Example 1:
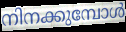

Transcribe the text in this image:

നിനക്കുമ്പോൾ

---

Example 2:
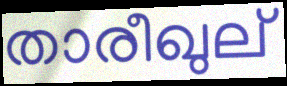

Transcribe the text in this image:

താരീഖുല്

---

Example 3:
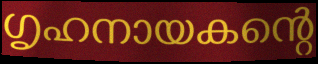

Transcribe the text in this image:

ഗൃഹനായകന്റെ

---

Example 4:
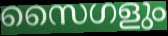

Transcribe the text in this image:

സൈഗളും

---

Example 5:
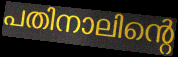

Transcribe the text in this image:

പതിനാലിന്റെ